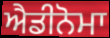
ਐਡੀਨੋਮਾ